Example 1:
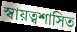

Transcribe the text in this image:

স্বায়ত্বশাসিত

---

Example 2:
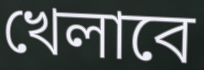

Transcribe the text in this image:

খেলাবে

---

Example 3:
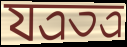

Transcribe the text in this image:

যত্রতত্র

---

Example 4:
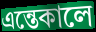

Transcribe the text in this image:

এন্তেকালে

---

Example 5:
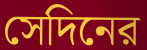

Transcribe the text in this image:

সেদিনের